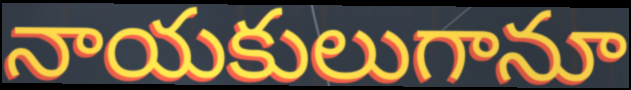
నాయకులుగానూ